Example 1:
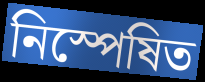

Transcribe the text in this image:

নিস্পেষিত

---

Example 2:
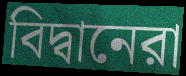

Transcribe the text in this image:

বিদ্বানেরা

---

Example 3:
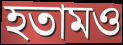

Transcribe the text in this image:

হতামও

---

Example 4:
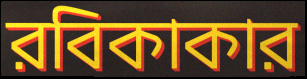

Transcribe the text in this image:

রবিকাকার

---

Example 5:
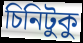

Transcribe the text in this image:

চিনিটুকু